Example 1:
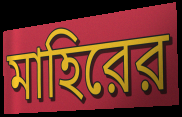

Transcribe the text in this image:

মাহিরের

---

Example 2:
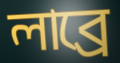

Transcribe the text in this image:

লাব্রে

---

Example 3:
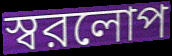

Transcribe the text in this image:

স্বরলোপ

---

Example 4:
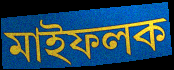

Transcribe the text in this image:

মাইফলক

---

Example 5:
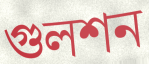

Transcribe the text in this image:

গুলশন